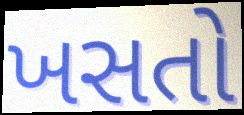
ખસતો